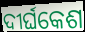
ଦୀର୍ଘକେଶ